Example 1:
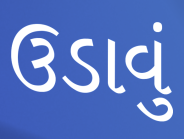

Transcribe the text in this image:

ઉડાવું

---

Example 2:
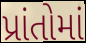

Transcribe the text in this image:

પ્રાંતોમાં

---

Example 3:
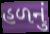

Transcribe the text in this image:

હળનું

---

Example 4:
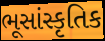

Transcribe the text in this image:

ભૂસાંસ્કૃતિક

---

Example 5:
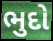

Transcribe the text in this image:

ભુદો